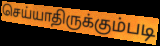
செய்யாதிருக்கும்படி